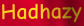
Hadhazy